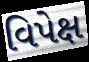
વિપેક્ષ